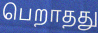
பெறாதது